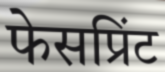
फेसप्रिंट